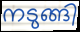
നടുങ്ങി